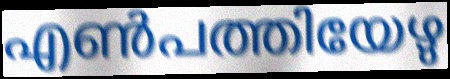
എൺപത്തിയേഴു